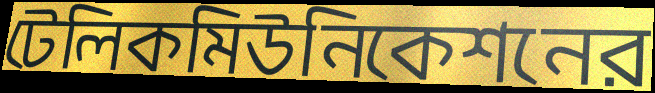
টেলিকমিউনিকেশনের